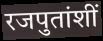
रजपुतांशीं